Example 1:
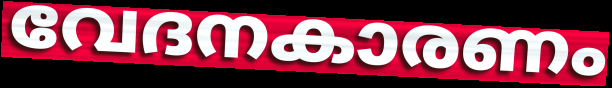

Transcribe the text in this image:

വേദനകാരണം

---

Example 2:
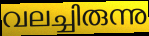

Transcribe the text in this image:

വലച്ചിരുന്നു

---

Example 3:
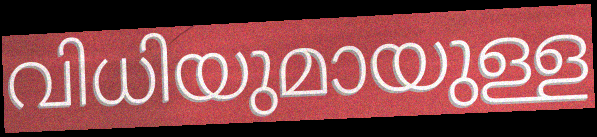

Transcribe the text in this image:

വിധിയുമായുള്ള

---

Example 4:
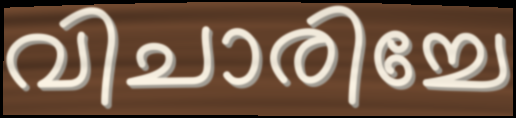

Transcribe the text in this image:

വിചാരിച്ചേ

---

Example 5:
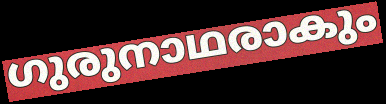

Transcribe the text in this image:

ഗുരുനാഥരാകും